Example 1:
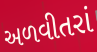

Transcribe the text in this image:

અળવીતરાં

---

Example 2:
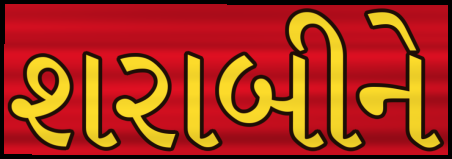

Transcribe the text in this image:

શરાબીને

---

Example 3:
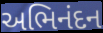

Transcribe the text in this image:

અભિનંદન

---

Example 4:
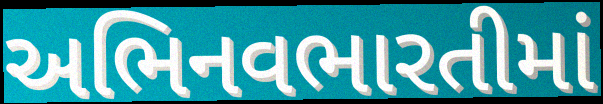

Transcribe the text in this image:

અભિનવભારતીમાં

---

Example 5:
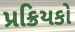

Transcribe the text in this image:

પ્રક્રિયકો